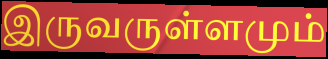
இருவருள்ளமும்